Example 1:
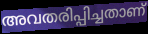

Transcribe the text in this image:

അവതരിപ്പിച്ചതാണ്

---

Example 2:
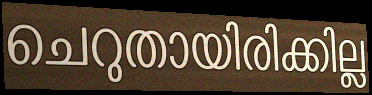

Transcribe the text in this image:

ചെറുതായിരിക്കില്ല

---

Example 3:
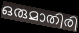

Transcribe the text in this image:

ഒരുമാതിരി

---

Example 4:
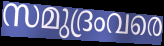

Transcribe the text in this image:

സമുദ്രംവരെ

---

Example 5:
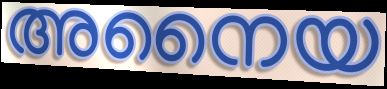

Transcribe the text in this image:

അനൈയ